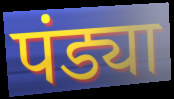
पंड्या